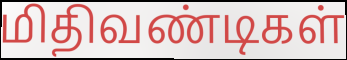
மிதிவண்டிகள்